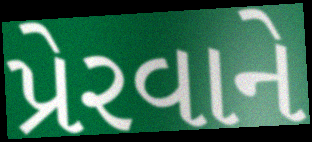
પ્રેરવાને